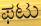
ಫಟು